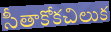
సీతాకోకచిలుక